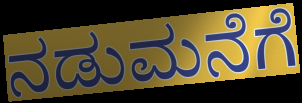
ನಡುಮನೆಗೆ